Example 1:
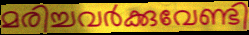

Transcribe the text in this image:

മരിച്ചവർക്കുവേണ്ടി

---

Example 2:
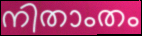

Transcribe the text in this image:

നിതാംതം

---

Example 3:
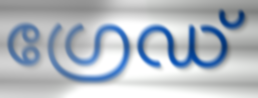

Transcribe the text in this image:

ഗ്രേഡ്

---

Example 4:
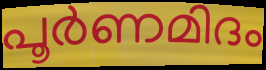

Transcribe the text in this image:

പൂർണമിദം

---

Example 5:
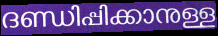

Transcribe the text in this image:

ദണ്ഡിപ്പിക്കാനുള്ള